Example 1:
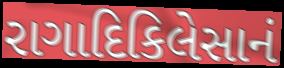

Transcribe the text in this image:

રાગાદિકિલેસાનં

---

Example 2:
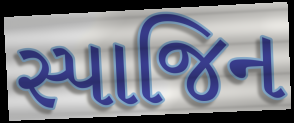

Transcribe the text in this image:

સ્પાજિન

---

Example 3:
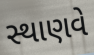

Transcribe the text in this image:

સ્થાણવે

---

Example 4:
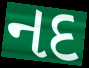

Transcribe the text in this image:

નદ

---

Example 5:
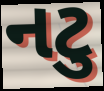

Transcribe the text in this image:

નટુ